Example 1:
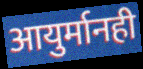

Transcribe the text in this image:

आयुर्मानही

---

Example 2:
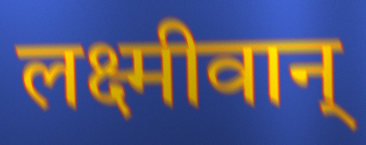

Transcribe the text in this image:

लक्ष्मीवान्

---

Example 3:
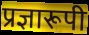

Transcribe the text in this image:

प्रज्ञारूपी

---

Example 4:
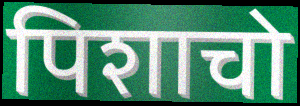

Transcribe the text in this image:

पिशाचो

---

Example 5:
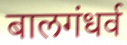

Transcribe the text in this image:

बालगंधर्व